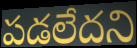
పడలేదని